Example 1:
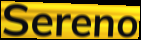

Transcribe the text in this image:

Sereno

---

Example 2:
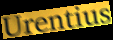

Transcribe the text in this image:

Urentius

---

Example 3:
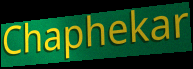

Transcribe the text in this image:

Chaphekar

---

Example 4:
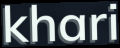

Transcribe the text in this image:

khari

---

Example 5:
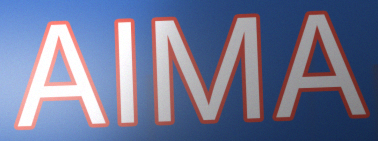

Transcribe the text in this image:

AIMA